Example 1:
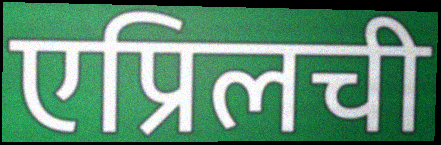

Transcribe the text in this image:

एप्रिलची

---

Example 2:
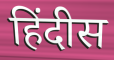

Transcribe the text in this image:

हिंदीस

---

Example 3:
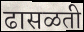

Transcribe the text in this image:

ढासळती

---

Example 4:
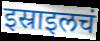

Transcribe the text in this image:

इस्राइलचं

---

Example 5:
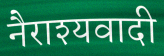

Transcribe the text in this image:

नैराश्यवादी